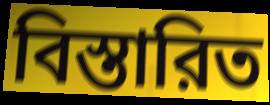
বিস্তারিত